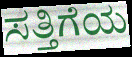
ಸತ್ತಿಗೆಯ